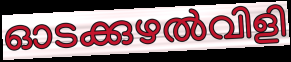
ഓടക്കുഴൽവിളി